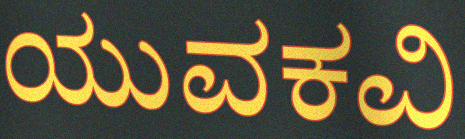
ಯುವಕವಿ